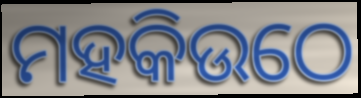
ମହକିଉଠେ